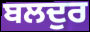
ਬਲਦੁਰ